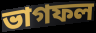
ভাগফল